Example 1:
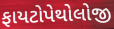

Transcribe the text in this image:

ફાયટોપેથોલોજી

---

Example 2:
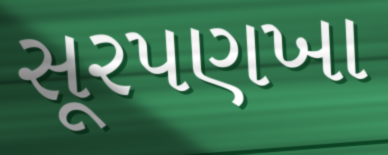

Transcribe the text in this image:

સૂરપણખા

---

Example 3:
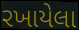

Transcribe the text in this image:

રખાયેલા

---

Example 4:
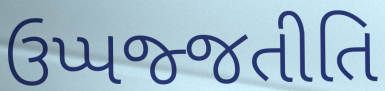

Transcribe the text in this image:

ઉપ્પજ્જતીતિ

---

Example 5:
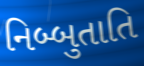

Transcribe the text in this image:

નિબ્બુતાતિ